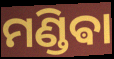
ମଣ୍ଡିଵା